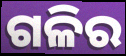
ଗଳିର